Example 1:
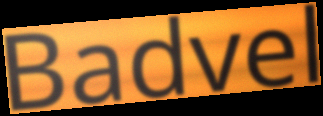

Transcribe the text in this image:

Badvel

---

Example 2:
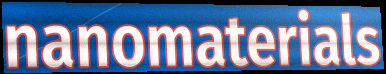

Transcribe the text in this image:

nanomaterials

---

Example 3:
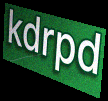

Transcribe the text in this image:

kdrpd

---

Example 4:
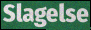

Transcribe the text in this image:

Slagelse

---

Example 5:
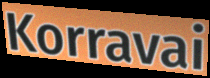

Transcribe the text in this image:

Korravai